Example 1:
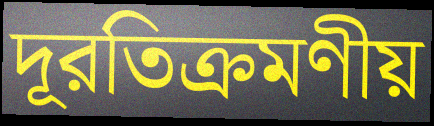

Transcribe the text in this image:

দূরতিক্রমণীয়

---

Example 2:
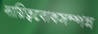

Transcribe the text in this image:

দায়িত্ববোধসম্পন্ন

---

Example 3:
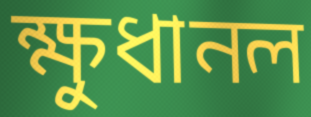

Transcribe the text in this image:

ক্ষুধানল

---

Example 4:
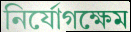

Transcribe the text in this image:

নির্যোগক্ষেম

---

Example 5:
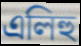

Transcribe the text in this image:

এলিহু